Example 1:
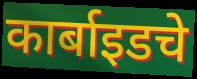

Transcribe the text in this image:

कार्बाइडचे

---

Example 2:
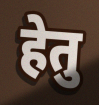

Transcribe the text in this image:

हेतु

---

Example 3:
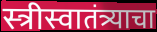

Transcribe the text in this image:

स्त्रीस्वातंत्र्याचा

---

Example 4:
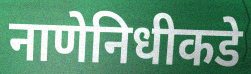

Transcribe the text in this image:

नाणेनिधीकडे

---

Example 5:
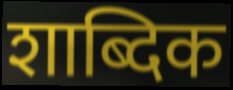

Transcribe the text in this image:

शाब्दिक